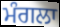
ਮੰਗਲਾ